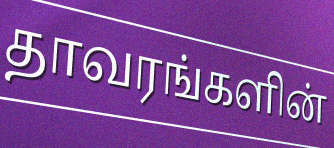
தாவரங்களின்